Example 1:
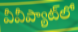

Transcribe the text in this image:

వీవీప్యాట్‌లో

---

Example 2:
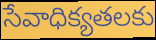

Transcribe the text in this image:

సేవాధిక్యతలకు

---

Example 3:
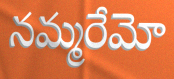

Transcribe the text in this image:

నమ్మరేమో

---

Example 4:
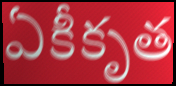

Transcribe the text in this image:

ఏకీకృత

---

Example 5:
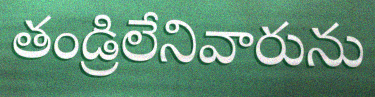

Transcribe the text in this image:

తండ్రిలేనివారును